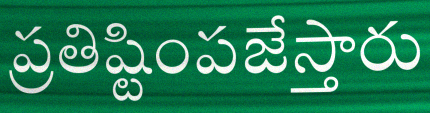
ప్రతిష్టింపజేస్తారు